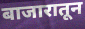
बाजारातून